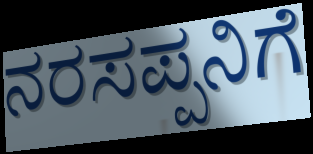
ನರಸಪ್ಪನಿಗೆ